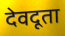
देवदूता